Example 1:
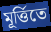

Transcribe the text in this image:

মূর্ত্তিতে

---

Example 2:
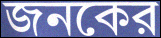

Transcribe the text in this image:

জনকের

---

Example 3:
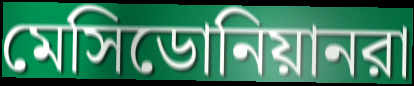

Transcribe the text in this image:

মেসিডোনিয়ানরা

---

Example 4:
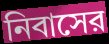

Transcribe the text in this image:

নিবাসের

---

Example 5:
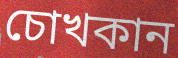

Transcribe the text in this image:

চোখকান